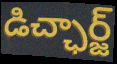
డిచ్ఛార్జ్